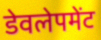
डेवलेपमेंट